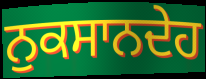
ਨੁਕਸਾਨਦੇਹ